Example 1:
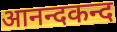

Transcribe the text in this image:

आनन्दकन्द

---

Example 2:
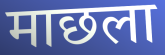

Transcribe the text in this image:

माछला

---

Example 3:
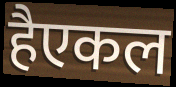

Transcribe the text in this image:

हैएकल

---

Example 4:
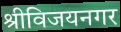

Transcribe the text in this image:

श्रीविजयनगर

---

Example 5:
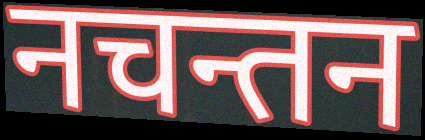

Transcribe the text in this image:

नचन्तन